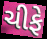
ચીફે